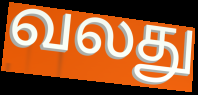
வலது